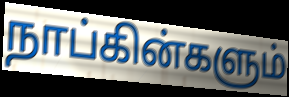
நாப்கின்களும்